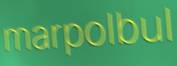
marpolbul